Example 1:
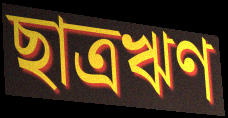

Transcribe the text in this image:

ছাত্রঋণ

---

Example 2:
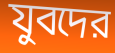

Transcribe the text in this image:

যুবদের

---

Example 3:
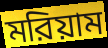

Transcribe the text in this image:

মরিয়াম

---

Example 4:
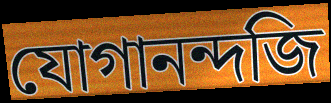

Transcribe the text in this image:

যোগানন্দজি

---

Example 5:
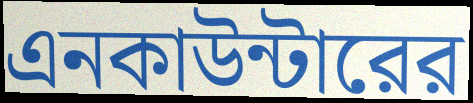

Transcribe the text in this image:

এনকাউন্টারের